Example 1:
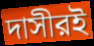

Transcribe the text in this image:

দাসীরই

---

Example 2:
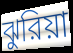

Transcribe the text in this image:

ঝুরিয়া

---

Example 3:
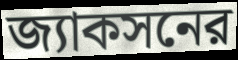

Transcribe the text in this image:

জ্যাকসনের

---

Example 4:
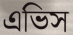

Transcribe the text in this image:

এভিস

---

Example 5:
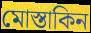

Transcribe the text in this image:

মোস্তাকিন